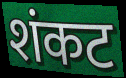
शंकट